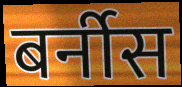
बर्नीस